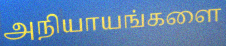
அநியாயங்களை